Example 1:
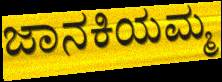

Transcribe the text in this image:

ಜಾನಕಿಯಮ್ಮ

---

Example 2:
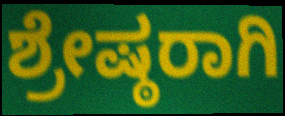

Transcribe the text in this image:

ಶ್ರೇಷ್ಠರಾಗಿ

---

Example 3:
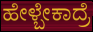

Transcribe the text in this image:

ಹೇಳ್ಬೇಕಾದ್ರೆ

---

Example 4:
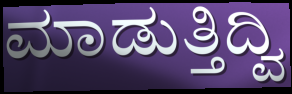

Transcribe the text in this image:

ಮಾಡುತ್ತಿದ್ವಿ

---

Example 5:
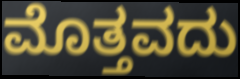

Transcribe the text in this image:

ಮೊತ್ತವದು